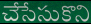
చేసేసుకొని